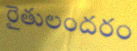
రైతులందరం